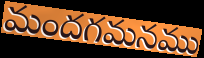
మందగమనము